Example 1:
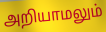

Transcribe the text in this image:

அறியாமலும்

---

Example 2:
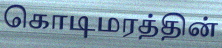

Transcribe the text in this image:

கொடிமரத்தின்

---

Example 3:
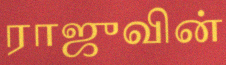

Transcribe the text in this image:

ராஜுவின்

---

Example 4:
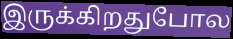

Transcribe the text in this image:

இருக்கிறதுபோல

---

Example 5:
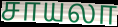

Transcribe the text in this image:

சாயலா